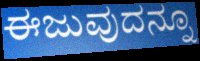
ಈಜುವುದನ್ನೂ